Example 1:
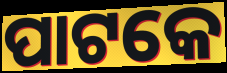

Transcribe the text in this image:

ପାଟକେ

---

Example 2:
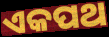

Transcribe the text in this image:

ଏକପଥ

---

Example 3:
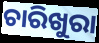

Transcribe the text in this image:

ଚାରିଖୁରା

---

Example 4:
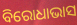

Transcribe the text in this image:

ବିରୋଧାଭାସ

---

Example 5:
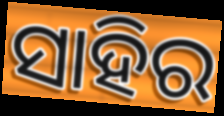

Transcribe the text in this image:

ସାହିର